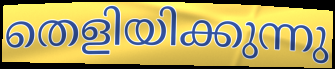
തെളിയിക്കുന്നു